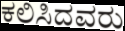
ಕಲಿಸಿದವರು